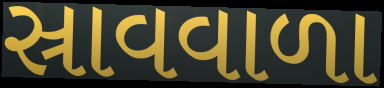
સ્રાવવાળા